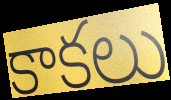
కాకలు